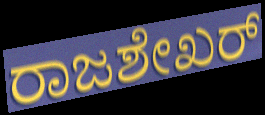
ರಾಜಶೇಖರ್